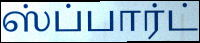
ஸ்ப்பார்ட்